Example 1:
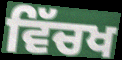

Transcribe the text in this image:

ਵਿੱਚਖ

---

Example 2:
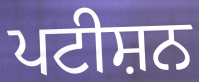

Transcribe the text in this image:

ਪਟੀਸ਼ਨ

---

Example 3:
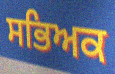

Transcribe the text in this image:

ਸਭਿਅਕ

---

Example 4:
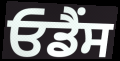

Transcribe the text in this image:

ਓਡੈਂਸ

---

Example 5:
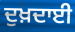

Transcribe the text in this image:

ਦੁਖ਼ਦਾਈ